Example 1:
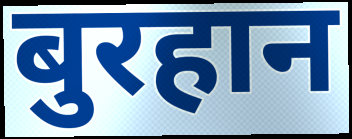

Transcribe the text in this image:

बुरहान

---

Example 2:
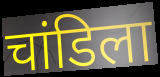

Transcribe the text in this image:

चांडिला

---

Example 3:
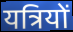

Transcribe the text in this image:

यत्रियों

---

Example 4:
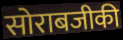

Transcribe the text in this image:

सोराबजीकी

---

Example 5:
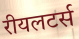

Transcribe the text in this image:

रीयलटर्स